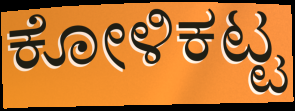
ಕೋಳಿಕಟ್ಟ